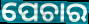
ପେଚାର